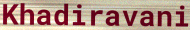
Khadiravani